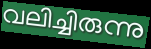
വലിച്ചിരുന്നു